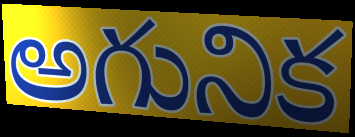
అగునిక